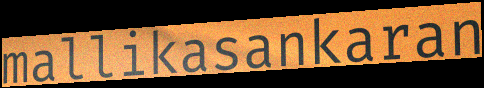
mallikasankaran